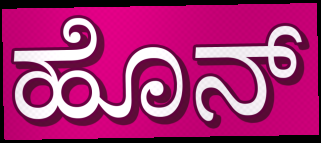
ಹೊನ್